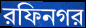
রফিনগর